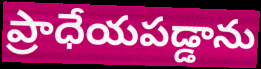
ప్రాధేయపడ్డాను